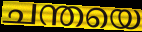
ചന്തയെ